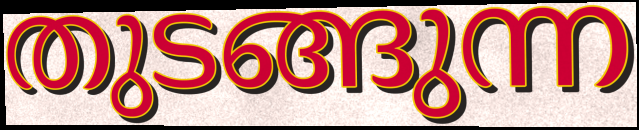
തുടങ്ങുന്ന